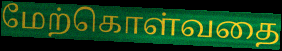
மேற்கொள்வதை